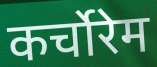
कर्चोरेम